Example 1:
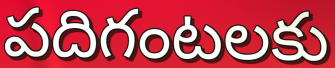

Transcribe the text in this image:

పదిగంటలకు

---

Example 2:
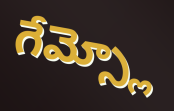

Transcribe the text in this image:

గేమ్స్లో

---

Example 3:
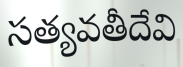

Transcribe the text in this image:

సత్యవతీదేవి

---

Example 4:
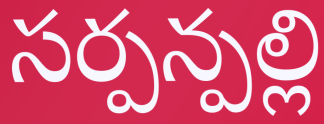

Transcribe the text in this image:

సర్పన్పల్లి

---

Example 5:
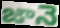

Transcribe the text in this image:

జానె